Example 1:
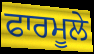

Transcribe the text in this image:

ਫਾਰਮੂਲੇ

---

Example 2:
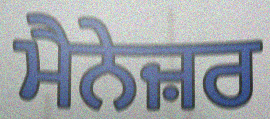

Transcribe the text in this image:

ਮੈਨੇਜ਼ਰ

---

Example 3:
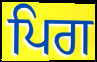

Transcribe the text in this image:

ਪਿਗ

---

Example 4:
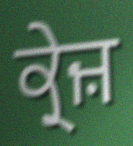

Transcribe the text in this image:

ਕ੍ਰੇਜ਼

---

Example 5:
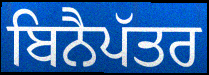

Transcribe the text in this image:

ਬਿਨੈਪੱਤਰ